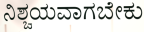
ನಿಶ್ಚಯವಾಗಬೇಕು